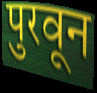
पुरवून